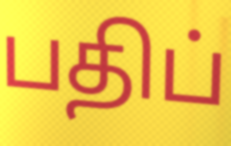
பதிப்